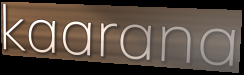
kaarana